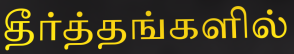
தீர்த்தங்களில்